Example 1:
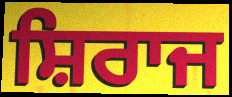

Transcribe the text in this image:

ਸ਼ਿਰਾਜ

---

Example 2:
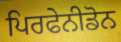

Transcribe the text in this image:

ਪਿਰਫੇਨੀਡੋਨ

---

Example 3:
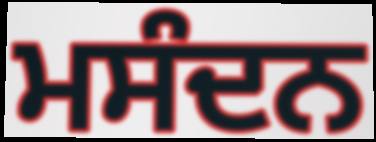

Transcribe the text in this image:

ਮਸੰਦਨ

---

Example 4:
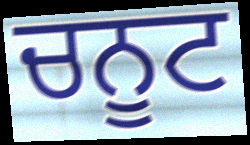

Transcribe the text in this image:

ਚਨੂਟ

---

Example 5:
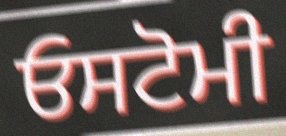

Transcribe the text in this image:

ਓਸਟੋਮੀ